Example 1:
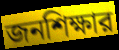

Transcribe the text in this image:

জনশিক্ষার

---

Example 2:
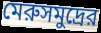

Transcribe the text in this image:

মেরুসমুদ্রের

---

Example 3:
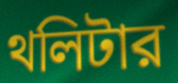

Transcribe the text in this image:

থলিটার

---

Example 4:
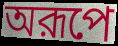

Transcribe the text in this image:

অরূপে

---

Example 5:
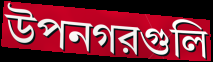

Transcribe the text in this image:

উপনগরগুলি